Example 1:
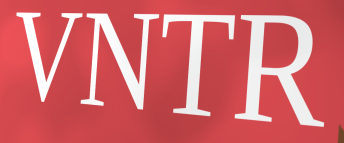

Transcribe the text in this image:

VNTR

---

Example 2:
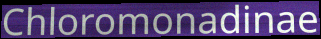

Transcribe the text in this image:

Chloromonadinae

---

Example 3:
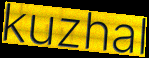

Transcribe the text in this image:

kuzhal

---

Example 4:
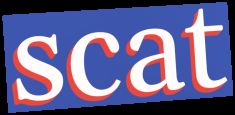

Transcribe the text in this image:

scat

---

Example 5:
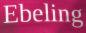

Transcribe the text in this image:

Ebeling